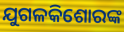
ଯୁଗଳକିଶୋରଙ୍କ